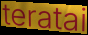
teratai